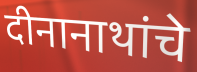
दीनानाथांचे